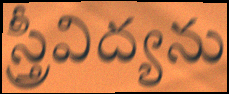
స్త్రీవిద్యను